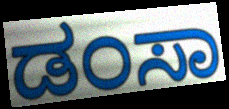
ಡಂಸಾ